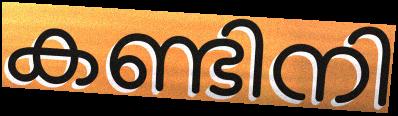
കണ്ടിനി